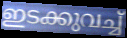
ഇടക്കുവച്ച്